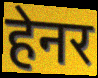
हेनर